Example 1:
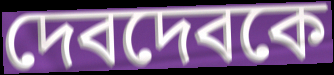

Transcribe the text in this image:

দেবদেবকে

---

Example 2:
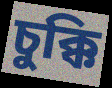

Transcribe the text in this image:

চুক্কি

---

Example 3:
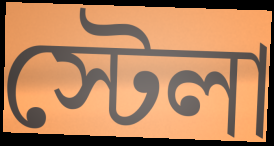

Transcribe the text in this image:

স্টেলা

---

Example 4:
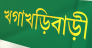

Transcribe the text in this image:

খগাখড়িবাড়ী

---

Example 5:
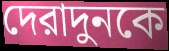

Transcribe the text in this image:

দেরাদুনকে